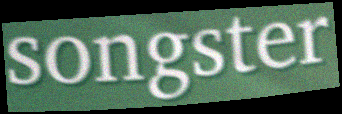
songster